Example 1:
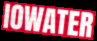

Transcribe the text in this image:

IOWATER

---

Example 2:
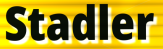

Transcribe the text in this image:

Stadler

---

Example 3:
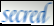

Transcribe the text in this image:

secred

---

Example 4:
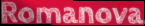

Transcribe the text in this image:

Romanova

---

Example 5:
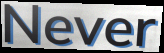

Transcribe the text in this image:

Never